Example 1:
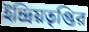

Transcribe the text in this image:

ইন্দ্রিয়তৃপ্তির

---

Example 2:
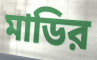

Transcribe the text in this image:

মাডির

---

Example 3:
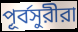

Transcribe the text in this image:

পূর্বসুরীরা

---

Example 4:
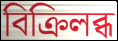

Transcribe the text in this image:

বিক্রিলব্ধ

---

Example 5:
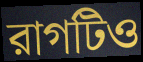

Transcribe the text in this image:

রাগটিও